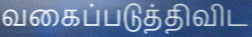
வகைப்படுத்திவிட